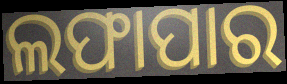
ଲଫାପାର